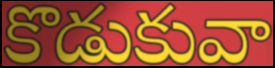
కొడుకువా